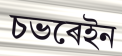
চভৰেইন